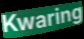
Kwaring